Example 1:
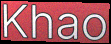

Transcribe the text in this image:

Khao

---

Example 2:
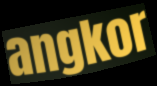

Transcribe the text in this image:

angkor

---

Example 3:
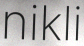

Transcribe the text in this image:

nikli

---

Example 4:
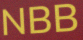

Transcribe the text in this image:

NBB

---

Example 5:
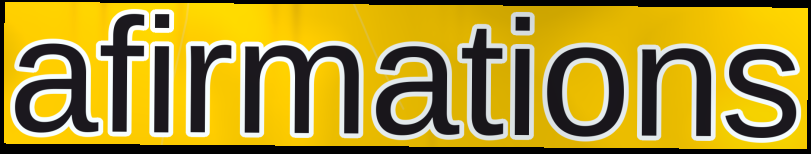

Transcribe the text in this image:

afirmations